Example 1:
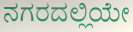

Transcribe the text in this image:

ನಗರದಲ್ಲಿಯೇ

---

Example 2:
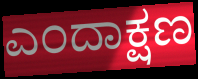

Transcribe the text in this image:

ಎಂದಾಕ್ಷಣ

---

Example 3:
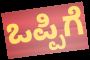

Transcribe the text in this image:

ಒಪ್ಪಿಗೆ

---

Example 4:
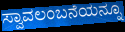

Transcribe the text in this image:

ಸ್ವಾವಲಂಬನೆಯನ್ನೂ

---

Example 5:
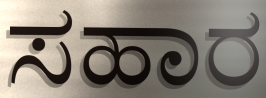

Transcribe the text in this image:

ಸಹಾರ